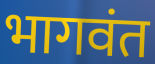
भागवंत